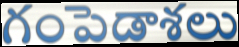
గంపెడాశలు